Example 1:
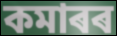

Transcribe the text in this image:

কমাৰৰ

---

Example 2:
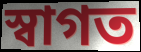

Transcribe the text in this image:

স্বাগত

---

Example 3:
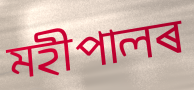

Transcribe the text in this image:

মহীপালৰ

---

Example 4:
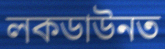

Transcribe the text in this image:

লকডাউনত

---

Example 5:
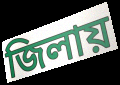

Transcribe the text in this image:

জিলায়